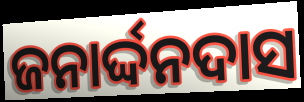
ଜନାର୍ଦ୍ଦନଦାସ